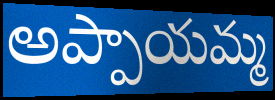
అప్పాయమ్మ